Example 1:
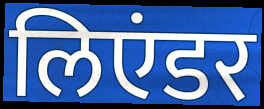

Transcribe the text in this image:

लिएंडर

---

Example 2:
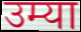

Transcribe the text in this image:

उम्या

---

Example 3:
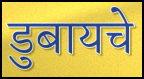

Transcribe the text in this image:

डुबायचे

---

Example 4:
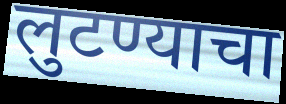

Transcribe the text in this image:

लुटण्याचा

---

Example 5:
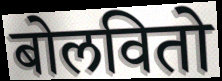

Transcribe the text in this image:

बोलवितो